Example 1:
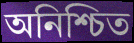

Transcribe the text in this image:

অনিশ্চিত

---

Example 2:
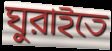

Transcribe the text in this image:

ঘুরাইতে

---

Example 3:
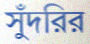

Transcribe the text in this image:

সুঁদরির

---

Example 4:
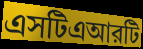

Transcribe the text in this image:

এসটিএআরটি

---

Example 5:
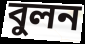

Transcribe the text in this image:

বুলন